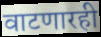
वाटणारही